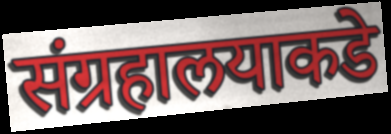
संग्रहालयाकडे